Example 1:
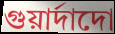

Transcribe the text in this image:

গুয়ার্দাদো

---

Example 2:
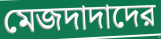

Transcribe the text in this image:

মেজদাদাদের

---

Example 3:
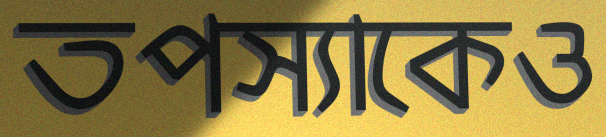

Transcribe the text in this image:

তপস্যাকেও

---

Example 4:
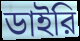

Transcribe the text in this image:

ডাইরি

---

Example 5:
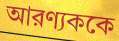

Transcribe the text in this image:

আরণ্যককে